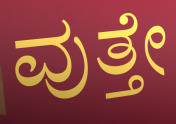
ವುತ್ತೇ